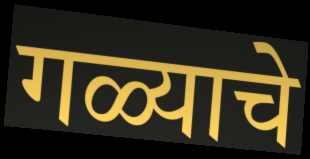
गळ्याचे